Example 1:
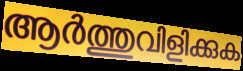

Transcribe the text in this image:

ആർത്തുവിളിക്കുക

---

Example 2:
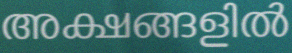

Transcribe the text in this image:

അക്ഷങ്ങളിൽ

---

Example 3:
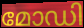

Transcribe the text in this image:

മോഡി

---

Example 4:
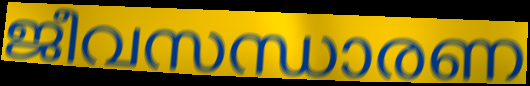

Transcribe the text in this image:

ജീവസന്ധാരണ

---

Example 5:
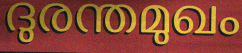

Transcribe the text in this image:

ദുരന്തമുഖം